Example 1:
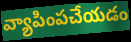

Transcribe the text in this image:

వ్యాపింపచేయడం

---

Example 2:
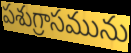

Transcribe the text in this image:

పశుగ్రాసమును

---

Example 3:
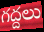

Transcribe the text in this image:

గద్దలు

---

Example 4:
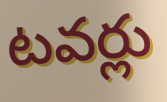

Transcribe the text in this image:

టవర్లు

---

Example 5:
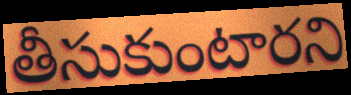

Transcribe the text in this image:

తీసుకుంటారని